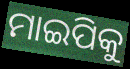
ମାଇପିକୁ